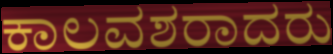
ಕಾಲವಶರಾದರು